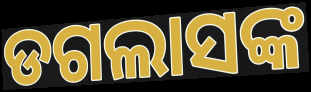
ଡଗଲାସଙ୍କ